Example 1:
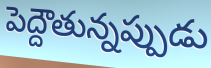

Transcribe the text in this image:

పెద్దౌతున్నప్పుడు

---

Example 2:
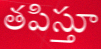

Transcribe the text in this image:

తపిస్తూ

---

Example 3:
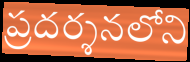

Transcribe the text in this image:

ప్రదర్శనలోని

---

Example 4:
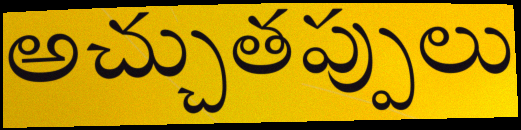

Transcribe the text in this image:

అచ్చుతప్పులు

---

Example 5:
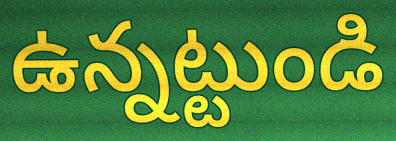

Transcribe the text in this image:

ఉన్నట్టుండి